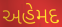
અહેમદ